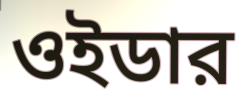
ওইডার